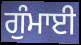
ਗੁੰਮਾਈ